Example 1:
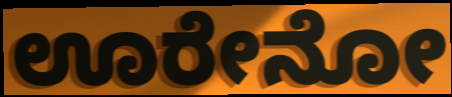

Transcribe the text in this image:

ಊರೇನೋ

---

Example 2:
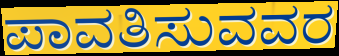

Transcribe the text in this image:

ಪಾವತಿಸುವವರ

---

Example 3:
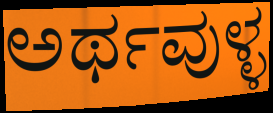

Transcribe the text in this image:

ಅರ್ಥವುಳ್ಳ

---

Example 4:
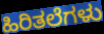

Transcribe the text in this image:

ಹಿರಿತಲೆಗಳು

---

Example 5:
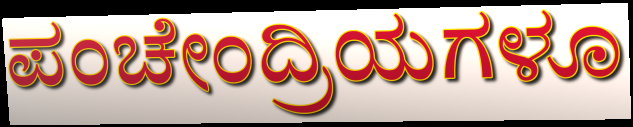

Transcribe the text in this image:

ಪಂಚೇಂದ್ರಿಯಗಳೂ